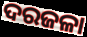
ଦରଜଳା